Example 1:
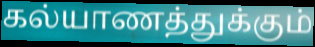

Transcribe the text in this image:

கல்யாணத்துக்கும்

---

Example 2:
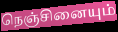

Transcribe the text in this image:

நெஞ்சினையும்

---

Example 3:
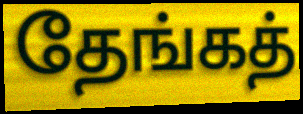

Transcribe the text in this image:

தேங்கத்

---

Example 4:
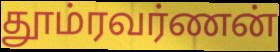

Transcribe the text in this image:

தூம்ரவர்ணன்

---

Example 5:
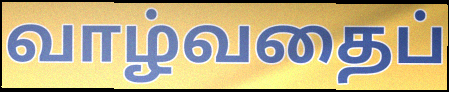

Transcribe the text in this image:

வாழ்வதைப்